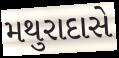
મથુરાદાસે